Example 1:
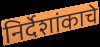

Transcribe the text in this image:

निर्देशांकाचे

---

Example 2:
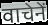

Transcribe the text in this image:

वाचेनें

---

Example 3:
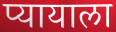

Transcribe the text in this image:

प्यायाला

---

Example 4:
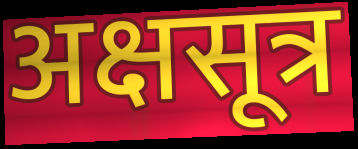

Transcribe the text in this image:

अक्षसूत्र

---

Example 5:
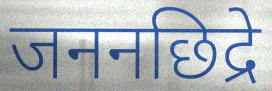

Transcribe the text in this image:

जननछिद्रे